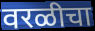
वरळीचा